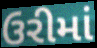
ઉરીમાં